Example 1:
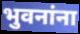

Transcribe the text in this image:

भुवनांना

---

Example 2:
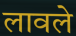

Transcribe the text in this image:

लावले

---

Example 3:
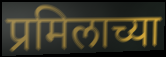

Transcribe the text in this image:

प्रमिलाच्या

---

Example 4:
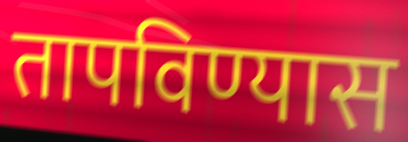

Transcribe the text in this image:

तापविण्यास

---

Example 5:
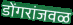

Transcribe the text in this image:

डोंगरांजवळ